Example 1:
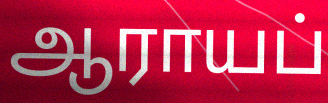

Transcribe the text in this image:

ஆராயப்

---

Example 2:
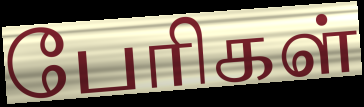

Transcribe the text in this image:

பேரிகள்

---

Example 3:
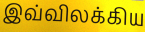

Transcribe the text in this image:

இவ்விலக்கிய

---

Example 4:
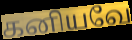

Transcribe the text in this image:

கனியவே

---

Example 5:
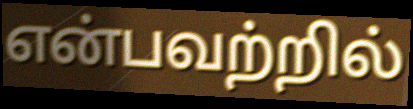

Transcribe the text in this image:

என்பவற்றில்